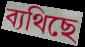
ব্যথিছে